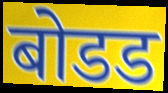
बोडड